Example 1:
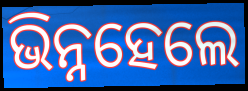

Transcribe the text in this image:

ଭିନ୍ନହେଲେ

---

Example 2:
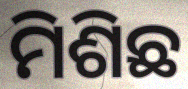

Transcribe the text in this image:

ମିଶିଛ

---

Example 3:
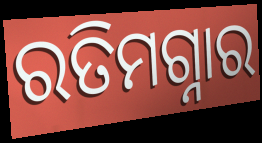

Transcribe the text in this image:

ରତିମଗ୍ନାର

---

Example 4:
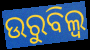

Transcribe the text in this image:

ଉରୁବିଲ୍ୱ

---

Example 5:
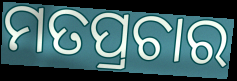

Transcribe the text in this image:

ମତପ୍ରଚାର